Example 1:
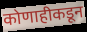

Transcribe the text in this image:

कोणाहीकडून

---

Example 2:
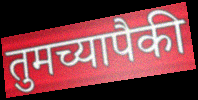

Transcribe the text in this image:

तुमच्यापैकी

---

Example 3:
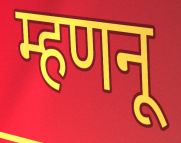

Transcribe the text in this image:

म्हणनू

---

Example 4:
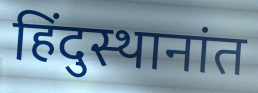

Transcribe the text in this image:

हिंदुस्थानांत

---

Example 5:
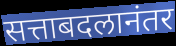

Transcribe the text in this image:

सत्ताबदलानंतर